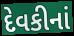
દેવકીનાં